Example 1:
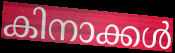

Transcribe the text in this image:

കിനാക്കൾ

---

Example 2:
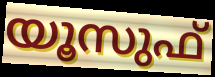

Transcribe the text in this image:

യൂസുഫ്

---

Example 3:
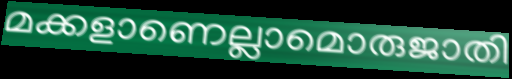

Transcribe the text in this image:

മക്കളാണെല്ലാമൊരുജാതി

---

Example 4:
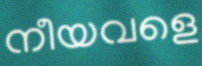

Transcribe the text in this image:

നീയവളെ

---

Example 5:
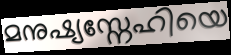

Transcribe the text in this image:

മനുഷ്യസ്നേഹിയെ